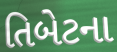
તિબેટના